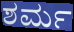
ಶರ್ಮ